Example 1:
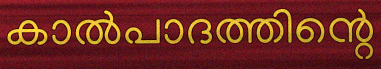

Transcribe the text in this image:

കാൽപാദത്തിന്റെ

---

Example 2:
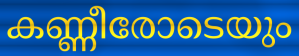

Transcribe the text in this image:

കണ്ണീരോടെയും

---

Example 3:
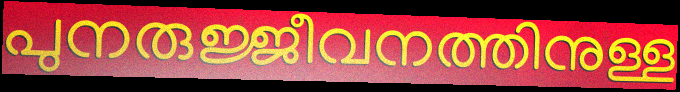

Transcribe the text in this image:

പുനരുജ്ജീവനത്തിനുള്ള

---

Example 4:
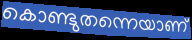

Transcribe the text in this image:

കൊണ്ടുതന്നെയാണ്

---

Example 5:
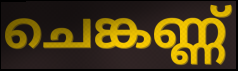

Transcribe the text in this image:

ചെങ്കണ്ണ്